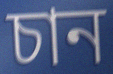
চান